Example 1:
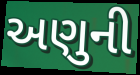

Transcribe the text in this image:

અણુની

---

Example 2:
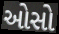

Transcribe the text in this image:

ઓસો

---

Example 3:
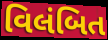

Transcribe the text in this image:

વિલંબિત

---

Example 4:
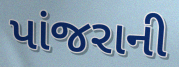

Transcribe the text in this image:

પાંજરાની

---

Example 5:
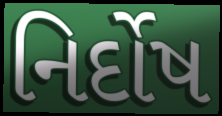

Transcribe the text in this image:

નિર્દોષ